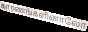
காரணங்களினாலோ